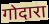
गोदारा